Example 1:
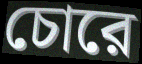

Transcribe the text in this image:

চোরে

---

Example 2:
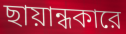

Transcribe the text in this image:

ছায়ান্ধকারে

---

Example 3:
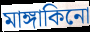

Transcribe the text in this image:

মাঙ্গাকিনো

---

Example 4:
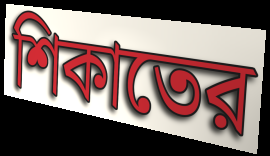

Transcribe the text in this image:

শিকাতের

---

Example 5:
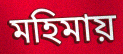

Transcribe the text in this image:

মহিমায়